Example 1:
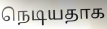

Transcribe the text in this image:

நெடியதாக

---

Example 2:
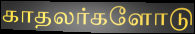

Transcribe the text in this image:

காதலர்களோடு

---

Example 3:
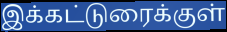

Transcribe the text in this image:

இக்கட்டுரைக்குள்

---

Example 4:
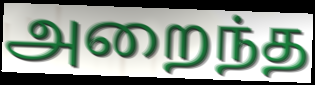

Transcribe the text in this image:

அறைந்த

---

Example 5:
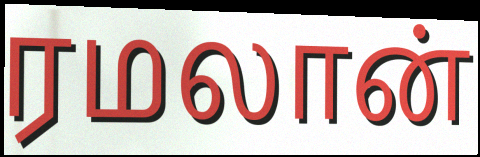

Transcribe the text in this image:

ரமலான்